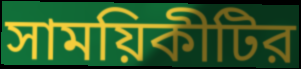
সাময়িকীটির